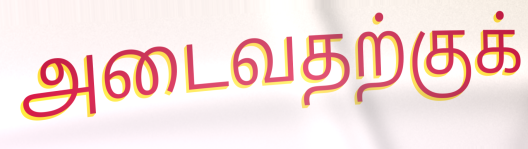
அடைவதற்குக்